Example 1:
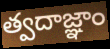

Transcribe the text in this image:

త్వదాజ్ఞాం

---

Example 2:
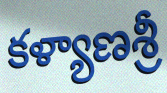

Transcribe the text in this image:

కళ్యాణశ్రీ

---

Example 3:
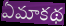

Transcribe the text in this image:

ఏమాకథ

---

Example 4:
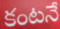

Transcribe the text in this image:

కంటనే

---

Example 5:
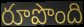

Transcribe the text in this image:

రూపొంది